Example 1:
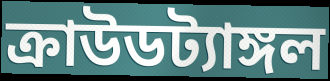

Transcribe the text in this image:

ক্রাউডট্যাঙ্গল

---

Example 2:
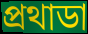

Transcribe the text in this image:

প্রথাডা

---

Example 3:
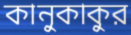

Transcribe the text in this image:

কানুকাকুর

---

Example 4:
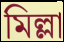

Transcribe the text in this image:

মিল্লা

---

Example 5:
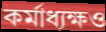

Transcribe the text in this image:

কর্মাধ্যক্ষও